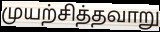
முயற்சித்தவாறு